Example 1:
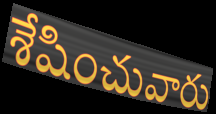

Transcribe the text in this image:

శేషించువారు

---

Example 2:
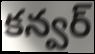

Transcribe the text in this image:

కన్వర్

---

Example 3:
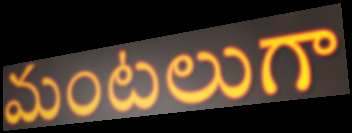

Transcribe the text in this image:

మంటలుగా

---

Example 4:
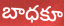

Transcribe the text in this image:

బాధకూ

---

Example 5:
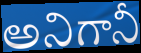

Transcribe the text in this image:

అనిగానీ